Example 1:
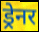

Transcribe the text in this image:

ड्रेनर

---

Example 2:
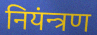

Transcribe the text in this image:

नियंन्त्रण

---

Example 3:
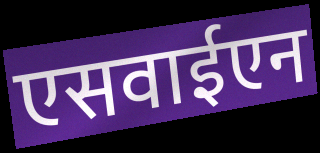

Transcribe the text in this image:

एसवाईएन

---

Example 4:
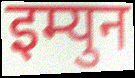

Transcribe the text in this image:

इम्युन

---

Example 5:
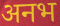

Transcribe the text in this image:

अनभ